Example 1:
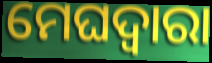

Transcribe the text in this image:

ମେଘଦ୍ୱାରା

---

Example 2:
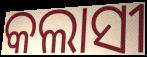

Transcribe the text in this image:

କଲାସୀ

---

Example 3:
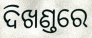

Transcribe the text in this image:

ଦିଖଣ୍ଡରେ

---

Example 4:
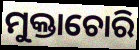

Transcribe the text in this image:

ମୁକ୍ତାଚୋରି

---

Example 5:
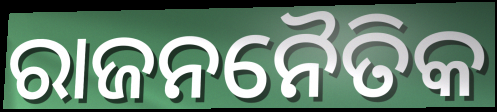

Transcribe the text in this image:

ରାଜନନୈତିକ